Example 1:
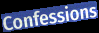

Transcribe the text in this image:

Confessions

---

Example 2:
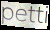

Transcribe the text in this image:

petti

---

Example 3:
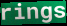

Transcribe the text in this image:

rings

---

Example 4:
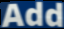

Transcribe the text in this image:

Add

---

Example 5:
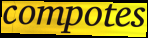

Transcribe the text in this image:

compotes